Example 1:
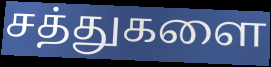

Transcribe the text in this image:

சத்துகளை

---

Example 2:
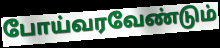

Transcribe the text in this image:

போய்வரவேண்டும்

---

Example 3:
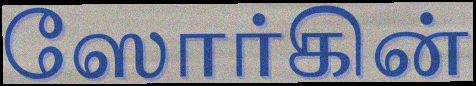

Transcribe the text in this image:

ஸோர்கின்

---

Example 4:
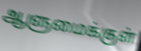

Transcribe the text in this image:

ஆளுமைக்குள்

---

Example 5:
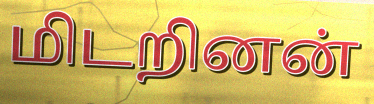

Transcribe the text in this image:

மிடறினன்